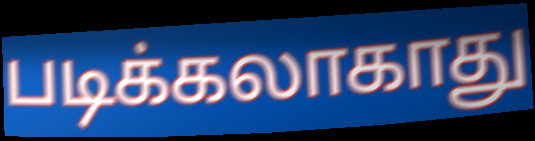
படிக்கலாகாது